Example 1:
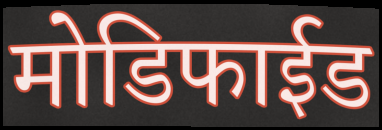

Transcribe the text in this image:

मोडिफाईड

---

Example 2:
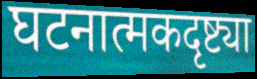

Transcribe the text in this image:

घटनात्मकदृष्ट्या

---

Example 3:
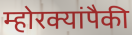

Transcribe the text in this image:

म्होरक्यांपैकी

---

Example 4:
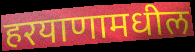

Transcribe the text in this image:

हरयाणामधील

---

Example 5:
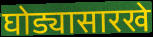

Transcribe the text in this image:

घोड्यासारखे